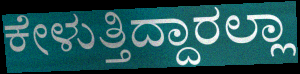
ಕೇಳುತ್ತಿದ್ದಾರಲ್ಲಾ